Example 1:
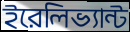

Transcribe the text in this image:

ইরেলিভ্যান্ট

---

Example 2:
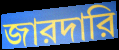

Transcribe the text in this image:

জারদারি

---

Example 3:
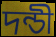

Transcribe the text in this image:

দন্ডী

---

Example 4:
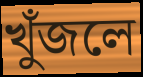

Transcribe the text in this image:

খুঁজলে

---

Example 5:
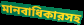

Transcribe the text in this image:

মানবাধিকারসহ